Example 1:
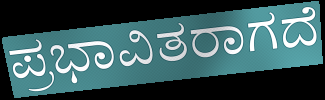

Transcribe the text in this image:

ಪ್ರಭಾವಿತರಾಗದೆ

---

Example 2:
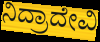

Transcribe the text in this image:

ನಿದ್ರಾದೇವಿ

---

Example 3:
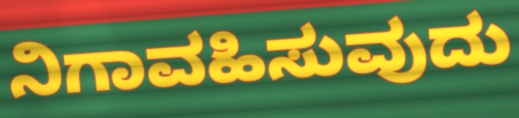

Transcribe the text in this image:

ನಿಗಾವಹಿಸುವುದು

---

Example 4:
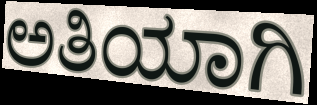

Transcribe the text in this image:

ಅತಿಯಾಗಿ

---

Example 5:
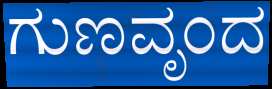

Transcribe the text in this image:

ಗುಣವೃಂದ